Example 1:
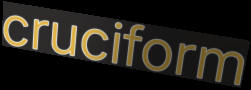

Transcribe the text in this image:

cruciform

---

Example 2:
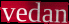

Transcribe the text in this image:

vedan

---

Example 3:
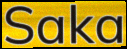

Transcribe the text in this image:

Saka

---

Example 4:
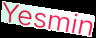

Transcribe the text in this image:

Yesmin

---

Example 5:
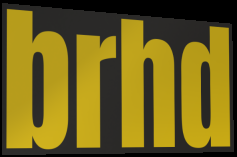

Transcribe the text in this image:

brhd